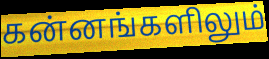
கன்னங்களிலும்